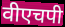
वीएचपी